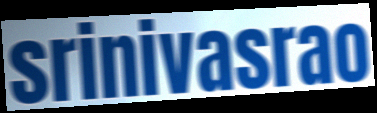
srinivasrao